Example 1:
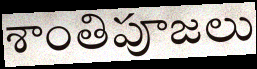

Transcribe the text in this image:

శాంతిపూజలు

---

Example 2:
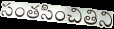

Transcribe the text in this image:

సంతసించితిని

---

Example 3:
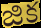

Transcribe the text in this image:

జిక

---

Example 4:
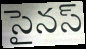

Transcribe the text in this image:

సైనస్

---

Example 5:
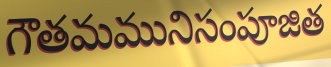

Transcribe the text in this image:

గౌతమమునిసంపూజిత